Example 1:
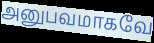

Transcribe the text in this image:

அனுபவமாகவே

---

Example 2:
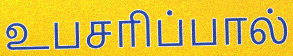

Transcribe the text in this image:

உபசரிப்பால்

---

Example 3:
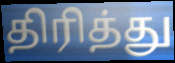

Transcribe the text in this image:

திரித்து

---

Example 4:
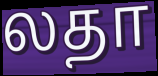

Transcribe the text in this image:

லதா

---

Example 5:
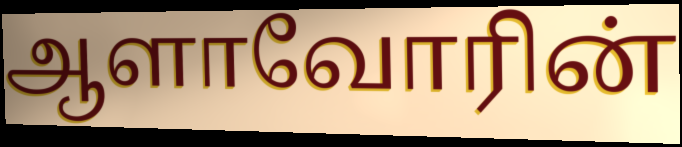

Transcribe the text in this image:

ஆளாவோரின்